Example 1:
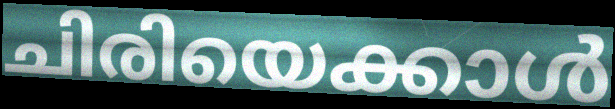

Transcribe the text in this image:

ചിരിയെക്കാൾ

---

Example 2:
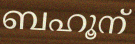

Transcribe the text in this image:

ബഹൂന്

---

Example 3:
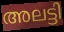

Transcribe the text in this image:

അലട്ടി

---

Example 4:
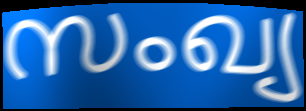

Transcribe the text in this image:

സംഖ്യ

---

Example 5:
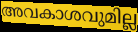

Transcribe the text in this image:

അവകാശവുമില്ല